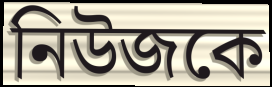
নিউজকে